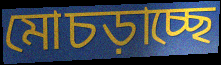
মোচড়াচ্ছে